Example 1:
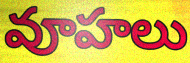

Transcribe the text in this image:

వూహలు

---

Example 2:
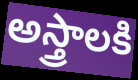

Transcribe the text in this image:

అస్త్రాలకి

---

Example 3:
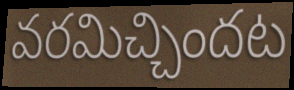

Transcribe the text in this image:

వరమిచ్చిందట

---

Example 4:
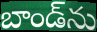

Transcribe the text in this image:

బాండ్‌ను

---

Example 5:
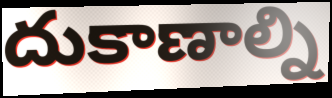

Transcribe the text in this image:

దుకాణాల్ని